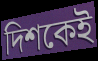
দিশকেই